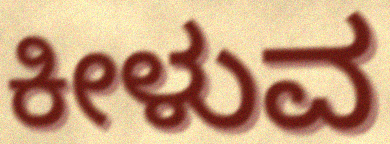
ಕೀಳುವ